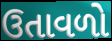
ઉતાવળો